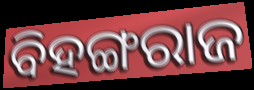
ବିହଙ୍ଗରାଜ